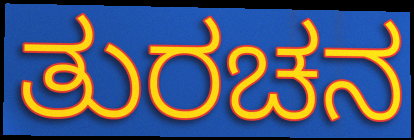
ತುರಚನ